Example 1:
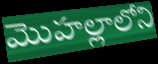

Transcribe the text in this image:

మొహల్లాలోని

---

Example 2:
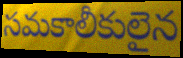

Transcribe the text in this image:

సమకాలీకులైన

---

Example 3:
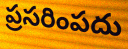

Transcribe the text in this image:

ప్రసరింపదు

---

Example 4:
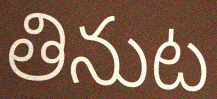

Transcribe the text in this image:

తినుట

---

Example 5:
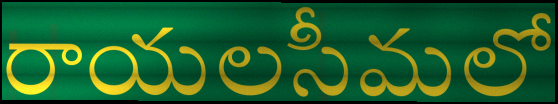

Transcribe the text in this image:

రాయలసీమలో